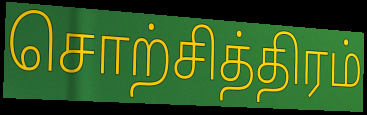
சொற்சித்திரம்